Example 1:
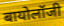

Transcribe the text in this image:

बायोलॉजी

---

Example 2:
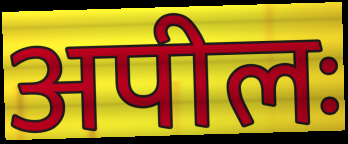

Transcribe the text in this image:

अपीलः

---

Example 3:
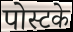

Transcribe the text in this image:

पोस्टके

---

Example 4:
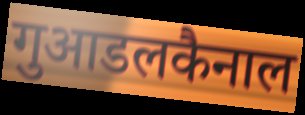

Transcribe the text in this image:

गुआडलकैनाल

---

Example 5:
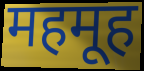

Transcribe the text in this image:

महमूह